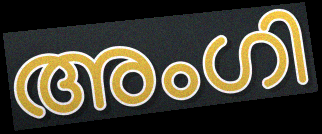
അംഗി